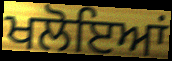
ਖਲੋਇਆਂ